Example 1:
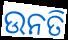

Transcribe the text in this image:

ଉନତି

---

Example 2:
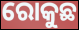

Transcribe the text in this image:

ରୋକୁଛ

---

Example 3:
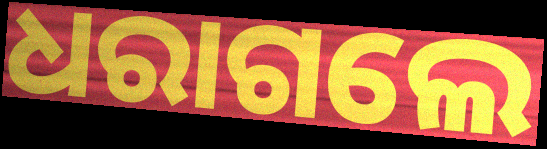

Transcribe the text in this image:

ଧରାଗଲେ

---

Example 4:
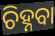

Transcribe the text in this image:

ଚିହ୍ନବା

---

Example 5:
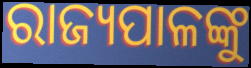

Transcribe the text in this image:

ରାଜ୍ୟପାଳଙ୍କୁ